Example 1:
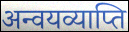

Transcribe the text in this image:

अन्वयव्याप्ति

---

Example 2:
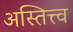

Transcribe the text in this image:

अस्तित्त्व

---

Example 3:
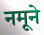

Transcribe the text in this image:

नमूने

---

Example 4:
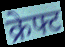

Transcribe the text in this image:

क्रेफ्ट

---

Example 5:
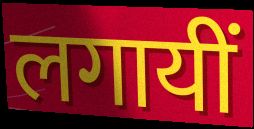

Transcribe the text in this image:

लगायीं